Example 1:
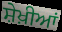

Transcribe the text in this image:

ਸ਼ੇਖ਼ੀਆਂ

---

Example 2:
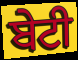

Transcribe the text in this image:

ਬੇਟੀ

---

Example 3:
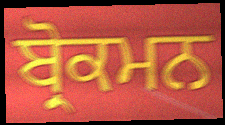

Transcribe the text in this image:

ਬ੍ਰੋਕਮਨ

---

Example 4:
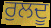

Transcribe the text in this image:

ਰੁਲਦੂ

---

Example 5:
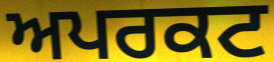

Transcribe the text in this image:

ਅਪਰਕਟ